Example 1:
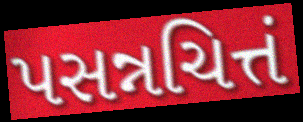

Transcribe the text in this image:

પસન્નચિત્તં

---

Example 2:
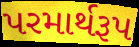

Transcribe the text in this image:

પરમાર્થરૂપ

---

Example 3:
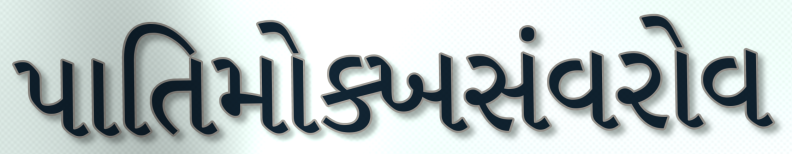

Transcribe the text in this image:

પાતિમોક્ખસંવરોવ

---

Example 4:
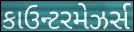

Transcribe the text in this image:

કાઉન્ટરમેઝર્સ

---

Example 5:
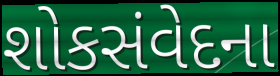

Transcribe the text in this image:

શોકસંવેદના